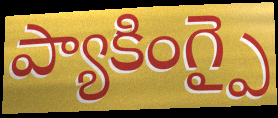
ప్యాకింగ్పై